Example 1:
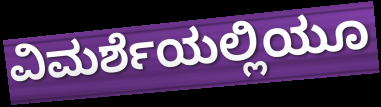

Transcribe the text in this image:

ವಿಮರ್ಶೆಯಲ್ಲಿಯೂ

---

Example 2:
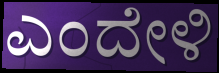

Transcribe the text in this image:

ಎಂದೇಳಿ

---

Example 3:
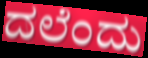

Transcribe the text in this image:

ದಲೆಂದು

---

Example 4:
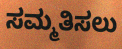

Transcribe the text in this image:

ಸಮ್ಮತಿಸಲು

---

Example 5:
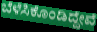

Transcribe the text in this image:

ಬೆಳೆಸಿಕೊಂಡಿದ್ದೇವೆ